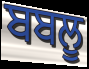
ਬਬਲੂ